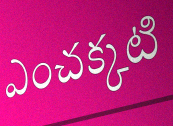
ఎంచక్కటి